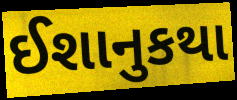
ઈશાનુકથા